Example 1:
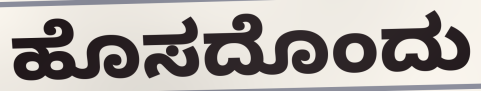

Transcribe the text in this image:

ಹೊಸದೊಂದು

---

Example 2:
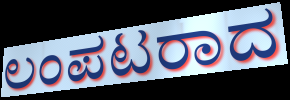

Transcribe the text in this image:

ಲಂಪಟರಾದ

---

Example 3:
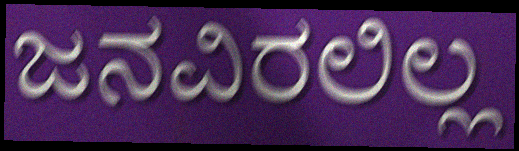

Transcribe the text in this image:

ಜನವಿರಲಿಲ್ಲ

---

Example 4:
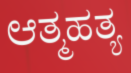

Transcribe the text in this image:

ಆತ್ಮಹತ್ಯ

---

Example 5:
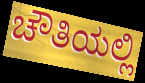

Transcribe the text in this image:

ಚೌತಿಯಲ್ಲಿ